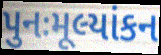
પુનઃમૂલ્યાંકન